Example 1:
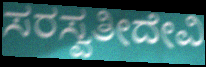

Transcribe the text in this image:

ಸರಸ್ವತೀದೇವಿ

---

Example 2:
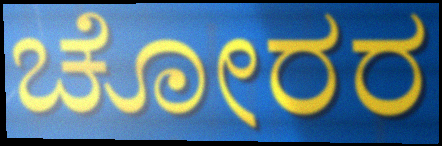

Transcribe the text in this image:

ಚೋರರ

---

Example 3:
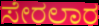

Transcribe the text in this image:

ಸೇರಲಾರ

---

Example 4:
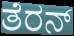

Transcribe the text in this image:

ತೆರನ್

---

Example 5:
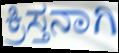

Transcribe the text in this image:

ಕ್ರಿಸ್ತನಾಗಿ